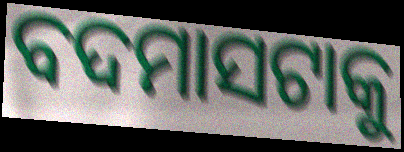
ବଦମାସଟାକୁ